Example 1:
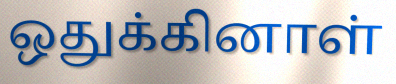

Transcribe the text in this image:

ஒதுக்கினாள்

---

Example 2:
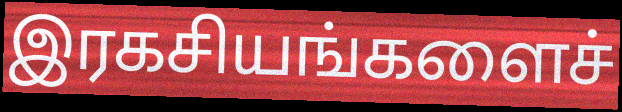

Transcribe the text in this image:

இரகசியங்களைச்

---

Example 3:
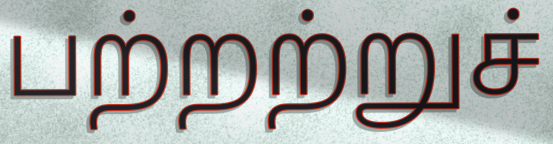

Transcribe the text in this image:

பற்றற்றுச்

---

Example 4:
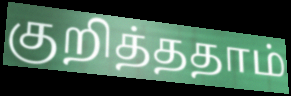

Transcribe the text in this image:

குறித்ததாம்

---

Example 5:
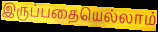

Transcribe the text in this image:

இருப்பதையெல்லாம்